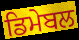
ਡਿਮੇਬਲ